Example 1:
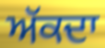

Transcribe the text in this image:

ਅੱਕਦਾ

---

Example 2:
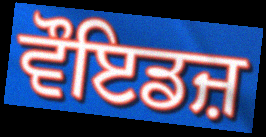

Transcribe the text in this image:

ਵੌਇਡਜ਼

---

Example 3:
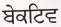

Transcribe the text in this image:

ਬੇਕਟਿਵ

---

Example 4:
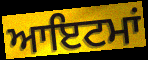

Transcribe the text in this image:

ਆਇਟਮਾਂ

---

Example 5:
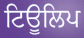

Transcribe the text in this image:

ਟਿਊਲਿਪ